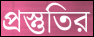
প্রস্তুতির